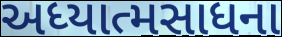
અધ્યાત્મસાધના